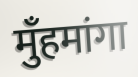
मुँहमांगा